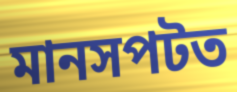
মানসপটত